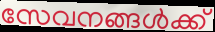
സേവനങ്ങൾക്ക്